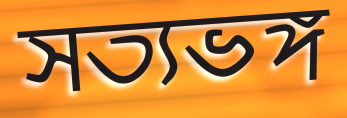
সত্যভঙ্গ